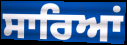
ਸਾਰਿਆਂ